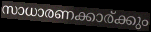
സാധാരണക്കാര്ക്കും